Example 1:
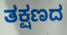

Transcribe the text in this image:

ತಕ್ಷಣದ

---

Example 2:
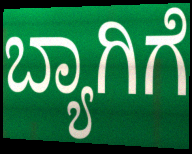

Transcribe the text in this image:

ಬ್ಯಾಗಿಗೆ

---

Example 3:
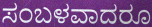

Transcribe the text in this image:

ಸಂಬಳವಾದರೂ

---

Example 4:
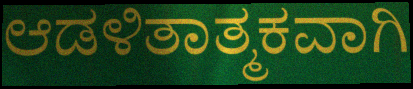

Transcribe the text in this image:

ಆಡಳಿತಾತ್ಮಕವಾಗಿ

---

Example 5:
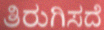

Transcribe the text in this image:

ತಿರುಗಿಸದೆ